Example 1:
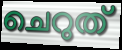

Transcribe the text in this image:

ചെറുത്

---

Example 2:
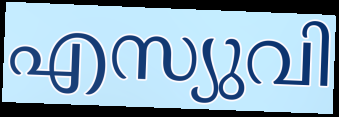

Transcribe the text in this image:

എസ്യുവി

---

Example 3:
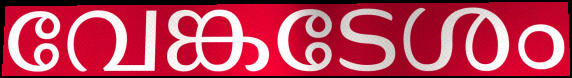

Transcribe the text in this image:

വേങ്കടേശം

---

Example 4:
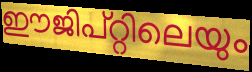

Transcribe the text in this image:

ഈജിപ്റ്റിലെയും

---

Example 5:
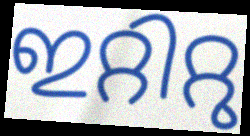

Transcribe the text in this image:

ഇറ്റിറ്റു